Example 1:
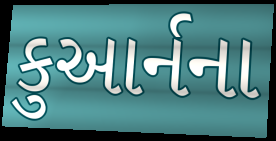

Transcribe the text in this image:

કુઆર્નના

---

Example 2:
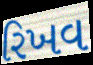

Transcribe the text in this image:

રિખવ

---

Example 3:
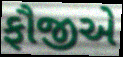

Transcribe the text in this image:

ફૌજીએ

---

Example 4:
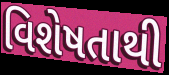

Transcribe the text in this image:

વિશેષતાથી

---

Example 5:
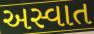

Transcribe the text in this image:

અસ્વાત